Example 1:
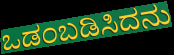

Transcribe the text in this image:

ಒಡಂಬಡಿಸಿದನು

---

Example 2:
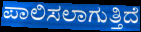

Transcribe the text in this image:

ಪಾಲಿಸಲಾಗುತ್ತಿದೆ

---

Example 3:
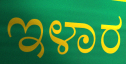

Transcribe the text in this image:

ಇಳಾರ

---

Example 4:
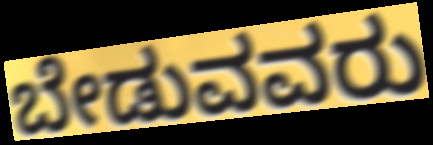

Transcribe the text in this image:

ಬೇಡುವವರು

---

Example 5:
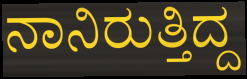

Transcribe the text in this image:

ನಾನಿರುತ್ತಿದ್ದ